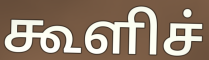
கூளிச்